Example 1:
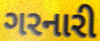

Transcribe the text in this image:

ગરનારી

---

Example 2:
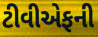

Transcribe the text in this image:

ટીવીએફની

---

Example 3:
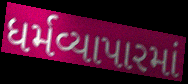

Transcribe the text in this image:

ધર્મવ્યાપારમાં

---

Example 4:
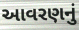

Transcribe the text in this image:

આવરણનું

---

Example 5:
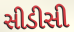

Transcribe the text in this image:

સીડીસી